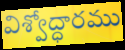
విశ్వోద్ధారము